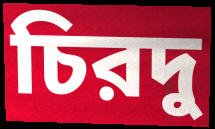
চিরদু